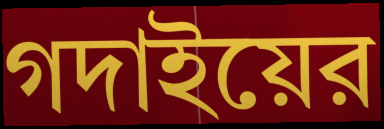
গদাইয়ের